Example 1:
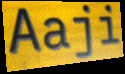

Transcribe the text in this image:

Aaji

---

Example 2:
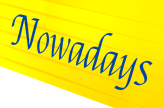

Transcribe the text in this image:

Nowadays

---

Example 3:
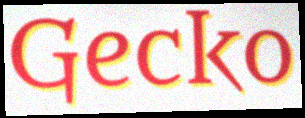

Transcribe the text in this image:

Gecko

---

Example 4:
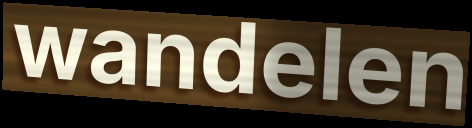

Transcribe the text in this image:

wandelen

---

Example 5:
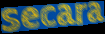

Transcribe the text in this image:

secara